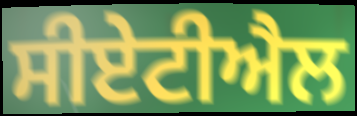
ਸੀਏਟੀਐਲ